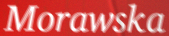
Morawska